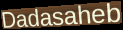
Dadasaheb